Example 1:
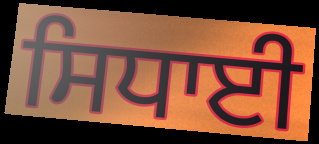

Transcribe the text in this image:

ਸਿਧਾਈ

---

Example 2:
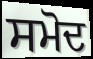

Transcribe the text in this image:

ਸਮੋਦ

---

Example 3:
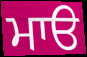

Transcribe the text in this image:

ਮਾੳ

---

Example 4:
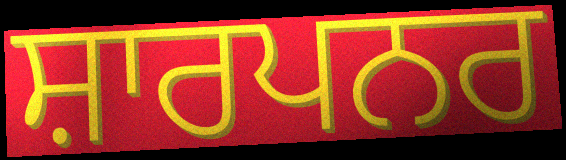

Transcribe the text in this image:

ਸ਼ਾਰਪਨਰ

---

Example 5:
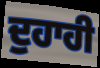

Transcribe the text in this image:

ਦੁਹਾਹੀ